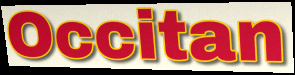
Occitan